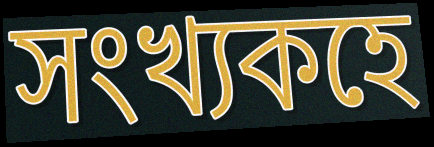
সংখ্যকহে